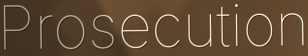
Prosecution